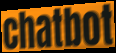
chatbot